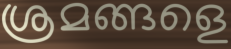
ശ്രമങ്ങളെ